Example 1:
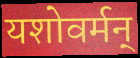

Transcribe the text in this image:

यशोवर्मन्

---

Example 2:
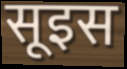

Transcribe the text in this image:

सूइस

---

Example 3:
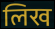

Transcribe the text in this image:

लिख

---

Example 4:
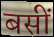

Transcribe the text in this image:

बसीं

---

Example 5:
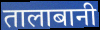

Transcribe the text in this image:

तालाबानी